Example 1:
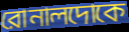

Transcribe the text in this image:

রোনালদোকে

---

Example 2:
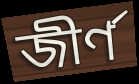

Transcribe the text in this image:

জীর্ণ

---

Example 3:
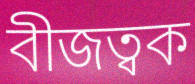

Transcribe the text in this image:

বীজত্বক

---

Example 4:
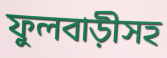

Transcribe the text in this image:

ফুলবাড়ীসহ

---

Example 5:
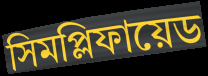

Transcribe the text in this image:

সিমপ্লিফায়েড